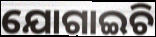
ଯୋଗାଇଚି